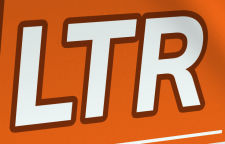
LTR